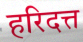
हरिदत्त